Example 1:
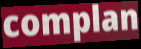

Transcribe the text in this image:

complan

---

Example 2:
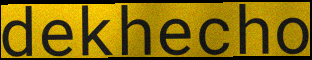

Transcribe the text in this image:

dekhecho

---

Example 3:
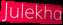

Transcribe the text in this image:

Julekha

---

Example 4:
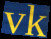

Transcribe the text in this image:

vk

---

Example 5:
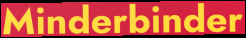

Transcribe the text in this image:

Minderbinder